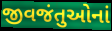
જીવજંતુઓનાં